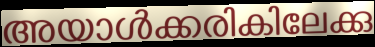
അയാൾക്കരികിലേക്കു